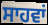
ਸਾਹਵਾਂ